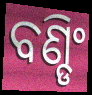
ବଣ୍ଡିଂ